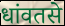
धांवतसे